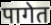
पागेत